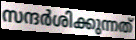
സന്ദർശിക്കുന്നത്